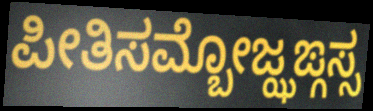
ಪೀತಿಸಮ್ಬೋಜ್ಝಙ್ಗಸ್ಸ